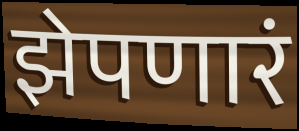
झेपणारं